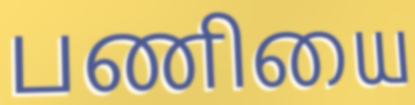
பணியை